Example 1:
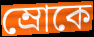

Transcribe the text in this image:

ম্রোকে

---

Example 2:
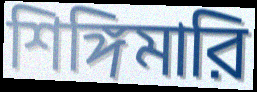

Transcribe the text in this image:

শিঙ্গিমারি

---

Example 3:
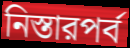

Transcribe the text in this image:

নিস্তারপর্ব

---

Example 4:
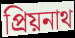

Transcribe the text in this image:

প্রিয়নাথ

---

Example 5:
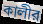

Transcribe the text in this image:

কালীর